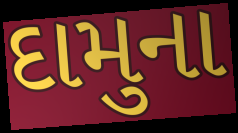
દામુના